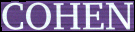
COHEN